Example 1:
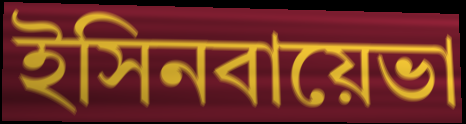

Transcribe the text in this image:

ইসিনবায়েভা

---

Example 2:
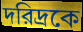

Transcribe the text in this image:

দরিদ্রকে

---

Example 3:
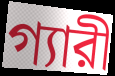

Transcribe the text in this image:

গ্যারী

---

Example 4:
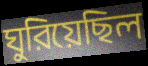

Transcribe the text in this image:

ঘুরিয়েছিল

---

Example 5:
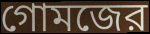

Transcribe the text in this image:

গোমজের